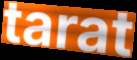
tarat